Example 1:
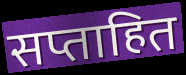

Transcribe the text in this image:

सप्ताहित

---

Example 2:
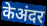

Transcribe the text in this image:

केअंदर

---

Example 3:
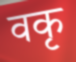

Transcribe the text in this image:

वकृ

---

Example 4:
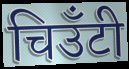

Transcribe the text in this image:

चिउँटी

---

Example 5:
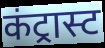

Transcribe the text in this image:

कंट्रास्ट